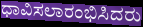
ಧಾವಿಸಲಾರಂಭಿಸಿದರು